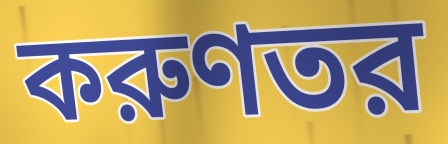
করুণতর